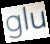
glu